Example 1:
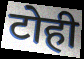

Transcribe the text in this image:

टोही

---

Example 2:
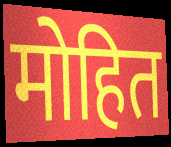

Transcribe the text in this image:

मोहित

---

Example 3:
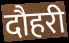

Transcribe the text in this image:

दौहरी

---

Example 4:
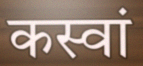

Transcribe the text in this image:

कस्‍वां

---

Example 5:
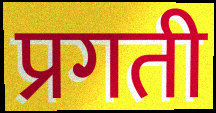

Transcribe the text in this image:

प्रगती